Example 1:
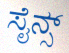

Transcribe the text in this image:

ಸೈನ್ಸ್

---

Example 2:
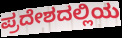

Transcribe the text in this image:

ಪ್ರದೇಶದಲ್ಲಿಯ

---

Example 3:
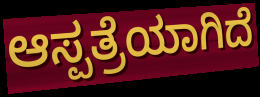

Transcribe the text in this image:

ಆಸ್ಪತ್ರೆಯಾಗಿದೆ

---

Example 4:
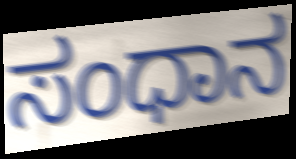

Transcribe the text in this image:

ಸಂಧಾನ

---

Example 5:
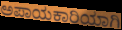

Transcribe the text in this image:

ಅಪಾಯಕಾರಿಯಾಗಿ